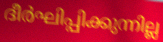
ദീർഘിപ്പിക്കുന്നില്ല